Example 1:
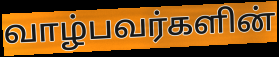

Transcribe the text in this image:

வாழ்பவர்களின்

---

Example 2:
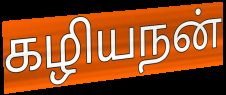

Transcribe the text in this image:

கழியநன்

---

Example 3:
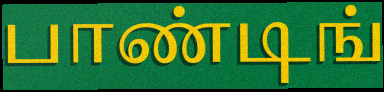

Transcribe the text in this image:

பாண்டிங்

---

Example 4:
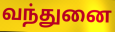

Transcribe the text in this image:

வந்துனை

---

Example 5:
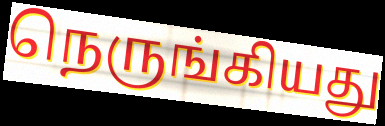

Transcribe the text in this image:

நெருங்கியது